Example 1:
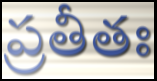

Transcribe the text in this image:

ప్రతీతః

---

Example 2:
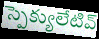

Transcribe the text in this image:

స్పెక్యులేటివ్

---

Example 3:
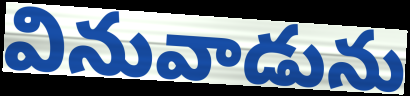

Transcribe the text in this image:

వినువాడును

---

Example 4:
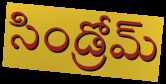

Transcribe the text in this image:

సిండ్రోమ్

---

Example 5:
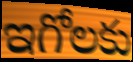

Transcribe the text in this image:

ఇగోలకు